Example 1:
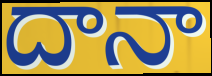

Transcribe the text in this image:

దానా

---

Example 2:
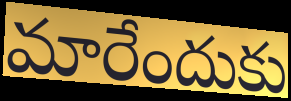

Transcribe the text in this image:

మారేందుకు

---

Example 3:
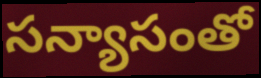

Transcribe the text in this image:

సన్యాసంతో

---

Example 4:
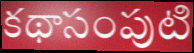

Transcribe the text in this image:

కథాసంపుటి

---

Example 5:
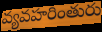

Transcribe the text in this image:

వ్యవహరింతురు